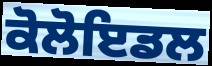
ਕੋਲੋਇਡਲ